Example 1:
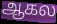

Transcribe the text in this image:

ஆகல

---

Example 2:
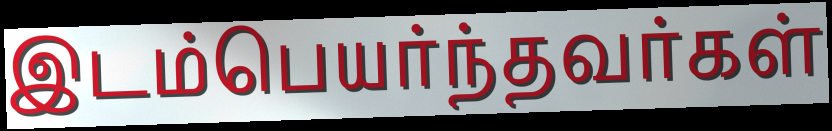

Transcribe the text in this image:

இடம்பெயர்ந்தவர்கள்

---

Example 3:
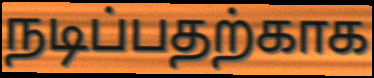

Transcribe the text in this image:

நடிப்பதற்காக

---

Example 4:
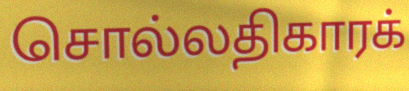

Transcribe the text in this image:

சொல்லதிகாரக்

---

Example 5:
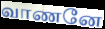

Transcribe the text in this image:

வாணனே